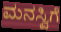
ಮನಸ್ವಿಗೆ